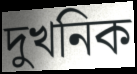
দুখনিক